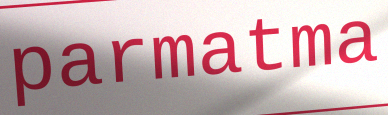
parmatma